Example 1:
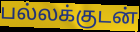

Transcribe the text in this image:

பல்லக்குடன்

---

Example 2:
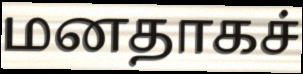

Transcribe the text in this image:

மனதாகச்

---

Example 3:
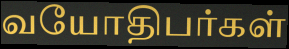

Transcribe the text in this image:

வயோதிபர்கள்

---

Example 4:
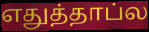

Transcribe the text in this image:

எதுத்தாப்ல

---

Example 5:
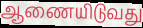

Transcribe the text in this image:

ஆணையிடுவது